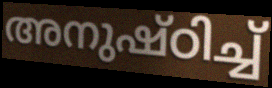
അനുഷ്ഠിച്ച്